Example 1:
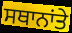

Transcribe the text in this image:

ਸਥਾਨਾਂਤੇ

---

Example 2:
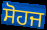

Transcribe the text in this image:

ਸੋਹਜ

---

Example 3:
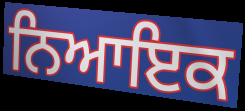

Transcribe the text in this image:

ਨਿਆਇਕ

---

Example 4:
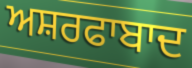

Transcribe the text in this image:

ਅਸ਼ਰਫਾਬਾਦ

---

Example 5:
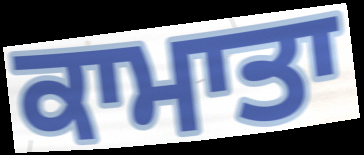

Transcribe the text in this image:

ਕਾਮਾਤਾ